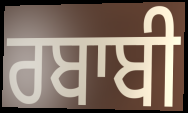
ਰਬਾਬੀ